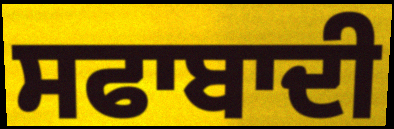
ਸਫਾਬਾਦੀ